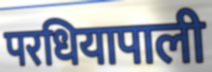
परधियापाली